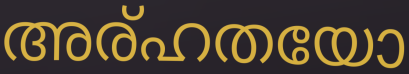
അര്ഹതയോ